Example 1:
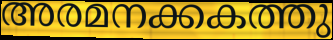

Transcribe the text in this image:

അരമനക്കകത്തു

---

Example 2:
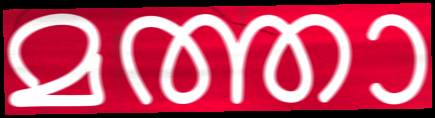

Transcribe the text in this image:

മത്താ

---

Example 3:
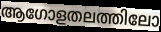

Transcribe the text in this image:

ആഗോളതലത്തിലോ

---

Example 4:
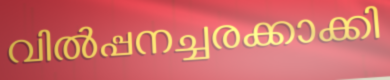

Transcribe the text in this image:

വിൽപ്പനച്ചരക്കാക്കി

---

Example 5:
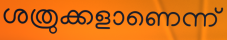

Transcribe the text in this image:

ശത്രുക്കളാണെന്ന്